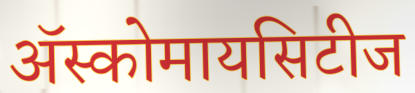
ॲस्कोमायसिटीज